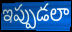
ఇప్పుడలా